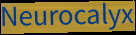
Neurocalyx